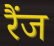
रैंज